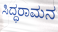
ಸಿದ್ಧರಾಮನ